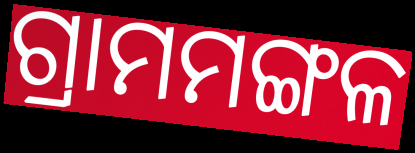
ଗ୍ରାମମଙ୍ଗଳ